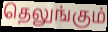
தெலுங்கும்